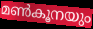
മൺകൂനയും